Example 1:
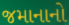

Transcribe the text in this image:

જમાનાનો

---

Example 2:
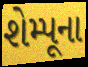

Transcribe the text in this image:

શેમ્પૂના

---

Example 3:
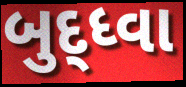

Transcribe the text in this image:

બુદ્ધ્વા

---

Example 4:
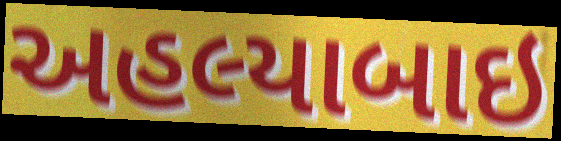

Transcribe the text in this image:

અહલ્યાબાઇ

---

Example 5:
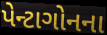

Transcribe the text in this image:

પેન્ટાગોનના